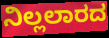
ನಿಲ್ಲಲಾರದ